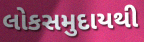
લોકસમુદાયથી